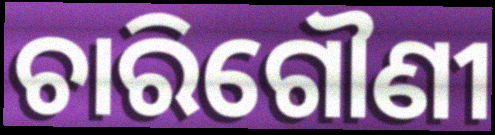
ଚାରିଗୌଣୀ